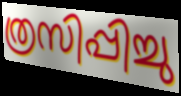
ത്രസിപ്പിച്ചു